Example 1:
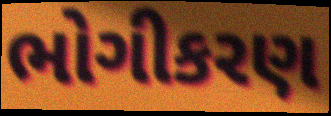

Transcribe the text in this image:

ભોગીકરણ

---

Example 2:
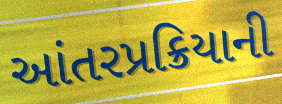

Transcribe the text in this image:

આંતરપ્રક્રિયાની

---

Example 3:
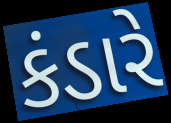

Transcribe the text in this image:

કંડારે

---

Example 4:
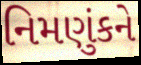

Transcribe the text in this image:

નિમણુંકને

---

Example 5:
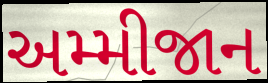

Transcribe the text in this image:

અમ્મીજાન